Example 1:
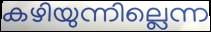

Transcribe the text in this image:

കഴിയുന്നില്ലെന്ന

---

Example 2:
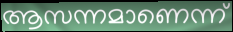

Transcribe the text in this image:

ആസന്നമാണെന്ന്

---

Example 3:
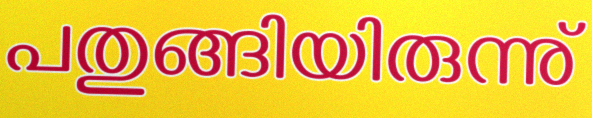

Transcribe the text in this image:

പതുങ്ങിയിരുന്നു്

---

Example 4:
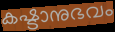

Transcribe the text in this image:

കഷ്ടാനുഭവം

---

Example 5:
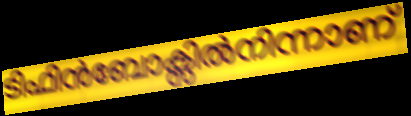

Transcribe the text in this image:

ടിഫിൻബോക്സിൽനിന്നാണ്